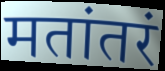
मतांतरं